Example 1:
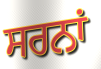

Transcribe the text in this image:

ਸਰਨਾਂ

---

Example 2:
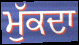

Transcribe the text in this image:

ਮੁੱਕਦਾ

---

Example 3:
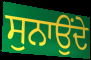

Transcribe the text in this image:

ਸੁਨਾਉਂਦੇ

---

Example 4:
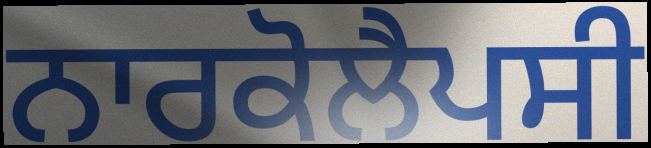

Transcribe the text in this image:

ਨਾਰਕੋਲੈਪਸੀ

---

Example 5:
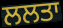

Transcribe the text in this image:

ਲਲਤਾ